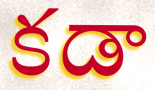
కడా